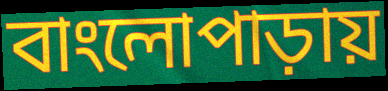
বাংলোপাড়ায়